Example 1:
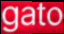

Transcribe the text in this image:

gato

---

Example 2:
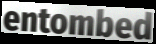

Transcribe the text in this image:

entombed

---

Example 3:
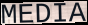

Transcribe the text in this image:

MEDIA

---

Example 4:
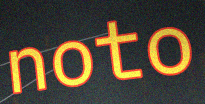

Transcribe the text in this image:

noto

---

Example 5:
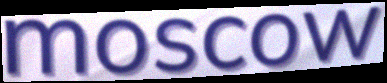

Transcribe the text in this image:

moscow